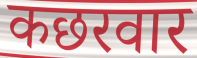
कछरवार